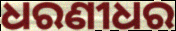
ଧରଣୀଧର